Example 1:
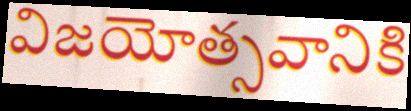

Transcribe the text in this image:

విజయోత్సవానికి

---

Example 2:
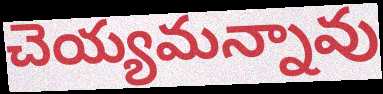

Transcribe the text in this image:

చెయ్యమన్నావు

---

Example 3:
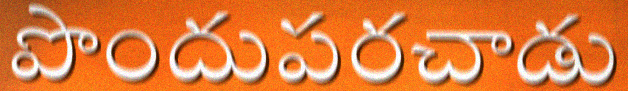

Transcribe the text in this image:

పొందుపరచాడు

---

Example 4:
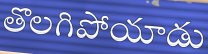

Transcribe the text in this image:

తొలగిపోయాడు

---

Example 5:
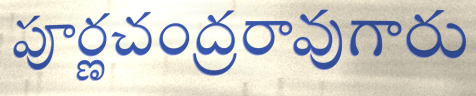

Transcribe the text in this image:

పూర్ణచంద్రరావుగారు